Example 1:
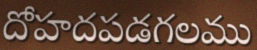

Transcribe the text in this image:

దోహదపడగలము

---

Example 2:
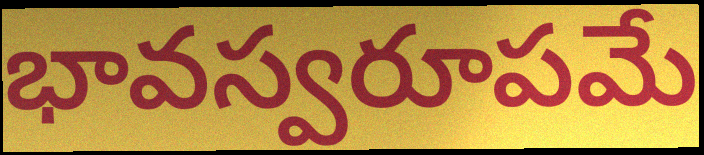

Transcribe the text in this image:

భావస్వరూపమే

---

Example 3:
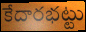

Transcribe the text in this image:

కేదారభట్టు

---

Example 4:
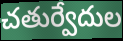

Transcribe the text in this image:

చతుర్వేదుల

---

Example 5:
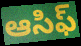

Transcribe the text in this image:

ఆసిఫ్